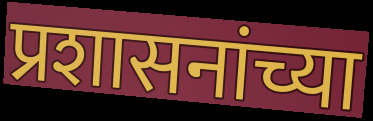
प्रशासनांच्या